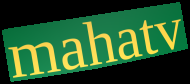
mahatv